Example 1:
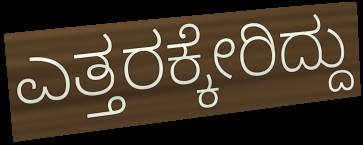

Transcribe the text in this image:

ಎತ್ತರಕ್ಕೇರಿದ್ದು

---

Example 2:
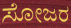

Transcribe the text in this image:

ಸೋಜರ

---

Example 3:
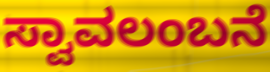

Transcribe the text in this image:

ಸ್ವಾವಲಂಬನೆ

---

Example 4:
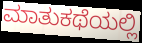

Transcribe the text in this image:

ಮಾತುಕಥೆಯಲ್ಲಿ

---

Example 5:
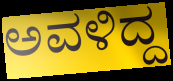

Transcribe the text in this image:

ಅವಳಿದ್ದ